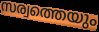
സര്വത്തെയും